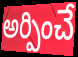
అర్పించే